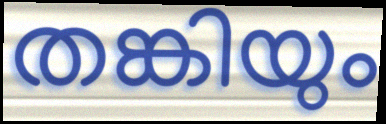
തങ്കിയും